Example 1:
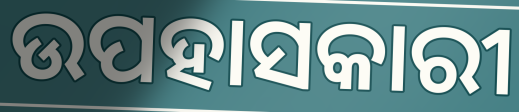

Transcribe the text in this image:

ଉପହାସକାରୀ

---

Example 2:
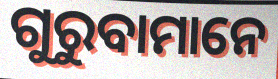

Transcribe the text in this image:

ଗୁରୁବାମାନେ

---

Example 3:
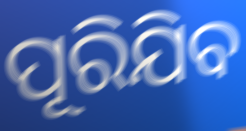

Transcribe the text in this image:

ପୂରିଯିବ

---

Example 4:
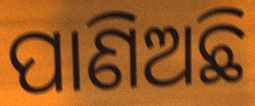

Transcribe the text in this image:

ପାଣିଅଛି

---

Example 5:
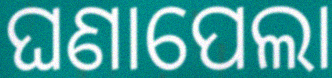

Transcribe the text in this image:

ଘଣାପେଲା